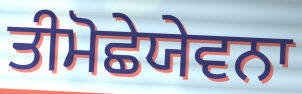
ਤੀਮੋਛੇਯੇਵਨਾ